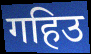
गहिउ